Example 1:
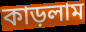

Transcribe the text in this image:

কাড়লাম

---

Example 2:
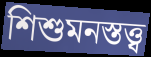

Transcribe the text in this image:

শিশুমনস্তত্ত্ব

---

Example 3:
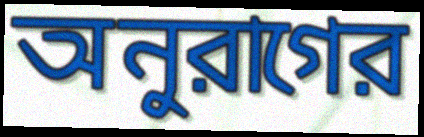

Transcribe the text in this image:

অনুরাগের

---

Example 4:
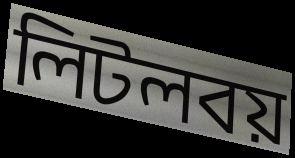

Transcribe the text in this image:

লিটলবয়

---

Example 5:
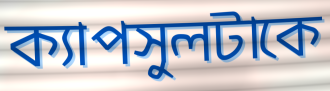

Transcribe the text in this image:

ক্যাপসুলটাকে